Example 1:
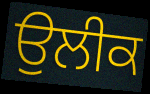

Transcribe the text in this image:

ਉਲੀਕ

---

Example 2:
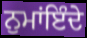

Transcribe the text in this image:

ਨੁਮਾਂਇੰਦੇ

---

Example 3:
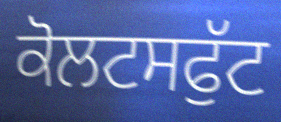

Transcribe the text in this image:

ਕੋਲਟਸਫੁੱਟ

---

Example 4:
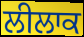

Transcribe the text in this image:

ਲੀਲਾਕ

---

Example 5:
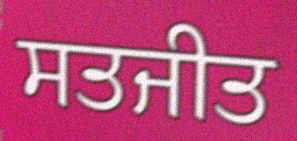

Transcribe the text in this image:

ਸਤਜੀਤ